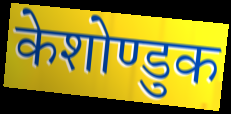
केशोण्डुक